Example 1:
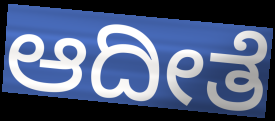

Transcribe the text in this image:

ಆದೀತೆ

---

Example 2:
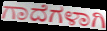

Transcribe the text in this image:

ಗಾದೆಗಳಾಗಿ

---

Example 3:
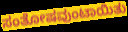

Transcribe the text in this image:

ಸಂತೋಷವುಂಟಾಯಿತು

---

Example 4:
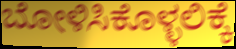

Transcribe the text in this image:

ಬೋಳಿಸಿಕೊಳ್ಳಲಿಕ್ಕೆ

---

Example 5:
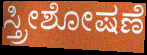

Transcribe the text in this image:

ಸ್ತ್ರೀಶೋಷಣೆ